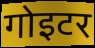
गोइटर